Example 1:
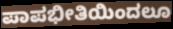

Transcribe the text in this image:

ಪಾಪಭೀತಿಯಿಂದಲೂ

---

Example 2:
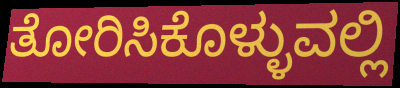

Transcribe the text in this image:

ತೋರಿಸಿಕೊಳ್ಳುವಲ್ಲಿ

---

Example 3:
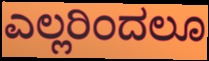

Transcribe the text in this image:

ಎಲ್ಲರಿಂದಲೂ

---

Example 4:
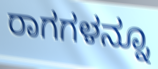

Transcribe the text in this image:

ರಾಗಗಳನ್ನೂ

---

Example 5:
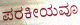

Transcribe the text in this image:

ಪರಕೀಯವೂ